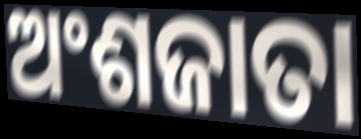
ଅଂଶଜାତା